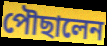
পৌছালেন